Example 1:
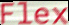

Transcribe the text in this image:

Flex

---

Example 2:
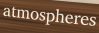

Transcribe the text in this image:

atmospheres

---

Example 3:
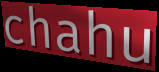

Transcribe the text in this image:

chahu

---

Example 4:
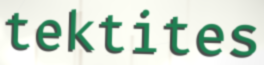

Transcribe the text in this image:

tektites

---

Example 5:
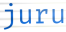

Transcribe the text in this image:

juru